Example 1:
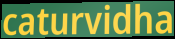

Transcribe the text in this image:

caturvidha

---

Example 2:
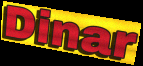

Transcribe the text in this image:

Dinar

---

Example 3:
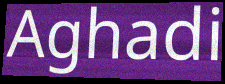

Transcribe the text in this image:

Aghadi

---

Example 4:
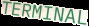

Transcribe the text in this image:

TERMINAL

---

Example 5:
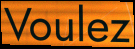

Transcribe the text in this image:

Voulez